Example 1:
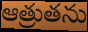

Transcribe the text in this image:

ఆత్రుతను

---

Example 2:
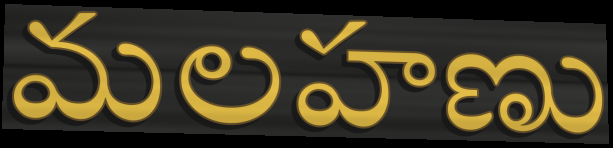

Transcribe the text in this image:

మలహణు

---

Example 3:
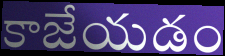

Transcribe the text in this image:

కాజేయడం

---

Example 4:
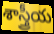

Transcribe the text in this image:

శాస్త్రీయ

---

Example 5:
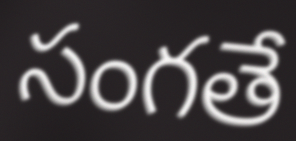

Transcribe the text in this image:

సంగతే